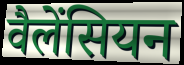
वैलेंसियन